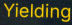
Yielding